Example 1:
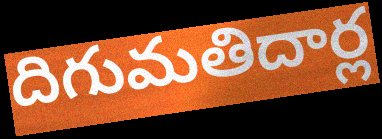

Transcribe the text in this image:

దిగుమతిదార్ల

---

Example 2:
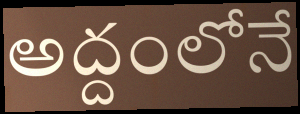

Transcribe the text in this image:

అద్దంలోనే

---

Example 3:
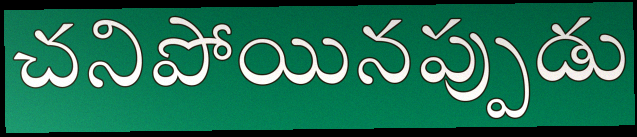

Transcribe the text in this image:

చనిపోయినప్పుడు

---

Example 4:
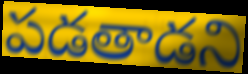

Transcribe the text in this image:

పడతాడని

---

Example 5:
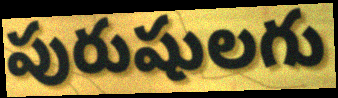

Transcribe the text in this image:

పురుషులగు